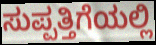
ಸುಪ್ಪತ್ತಿಗೆಯಲ್ಲಿ